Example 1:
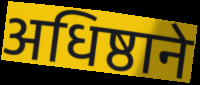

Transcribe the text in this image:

अधिष्ठाने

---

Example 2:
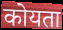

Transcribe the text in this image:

कोयता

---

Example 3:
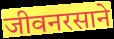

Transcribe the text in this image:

जीवनरसाने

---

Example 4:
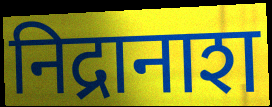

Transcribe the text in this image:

निद्रानाश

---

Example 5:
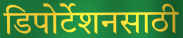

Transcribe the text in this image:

डिपोर्टेशनसाठी